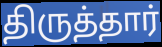
திருத்தார்